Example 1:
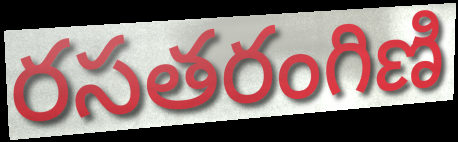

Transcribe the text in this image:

రసతరంగిణి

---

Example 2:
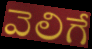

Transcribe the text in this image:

వెలిగే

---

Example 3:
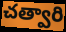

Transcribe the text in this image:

చత్వారి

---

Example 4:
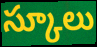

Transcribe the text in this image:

స్కూలు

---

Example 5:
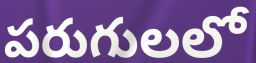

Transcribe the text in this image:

పరుగులలో